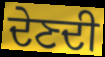
ਦੇਣਦੀ